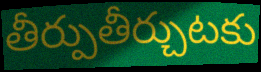
తీర్పుతీర్చుటకు